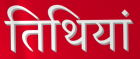
तिथियां